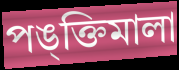
পঙ্‌ক্তিমালা